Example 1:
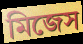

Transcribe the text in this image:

মিজেস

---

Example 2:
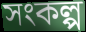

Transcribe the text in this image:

সংকল্প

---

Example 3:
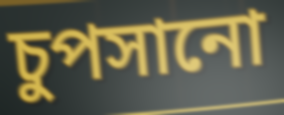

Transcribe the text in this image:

চুপসানো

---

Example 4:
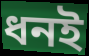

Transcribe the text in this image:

ধনই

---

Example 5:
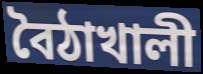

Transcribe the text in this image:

বৈঠাখালী